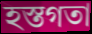
হস্তগতা